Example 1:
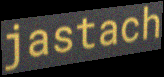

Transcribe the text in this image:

jastach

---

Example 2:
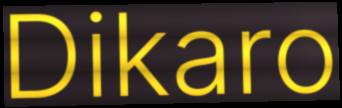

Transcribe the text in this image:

Dikaro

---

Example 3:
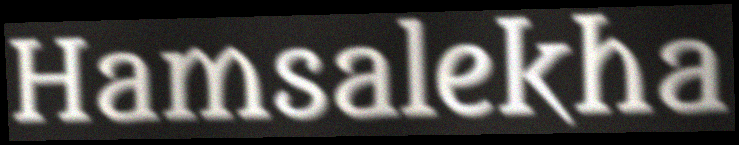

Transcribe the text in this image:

Hamsalekha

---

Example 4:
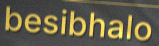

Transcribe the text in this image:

besibhalo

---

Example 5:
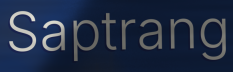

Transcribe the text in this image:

Saptrang